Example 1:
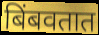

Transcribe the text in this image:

बिंबवतात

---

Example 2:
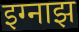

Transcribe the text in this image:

इग्नाझ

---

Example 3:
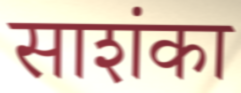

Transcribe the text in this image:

साशंका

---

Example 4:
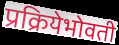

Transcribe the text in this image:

प्रक्रियेभोवती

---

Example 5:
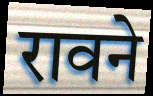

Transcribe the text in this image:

रावने